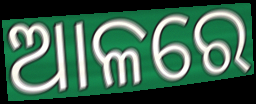
ଆଳରେ